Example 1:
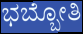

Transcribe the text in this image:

ಭಬ್ಬೋತಿ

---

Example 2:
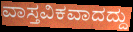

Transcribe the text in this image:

ವಾಸ್ತವಿಕವಾದದ್ದು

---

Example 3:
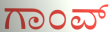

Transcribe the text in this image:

ಗಾಂವ್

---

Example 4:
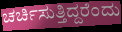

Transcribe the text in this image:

ಚರ್ಚಿಸುತ್ತಿದ್ದರೆಂದು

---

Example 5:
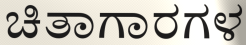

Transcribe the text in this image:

ಚಿತಾಗಾರಗಳ